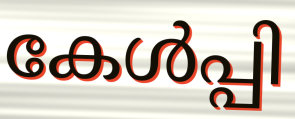
കേൾപ്പി